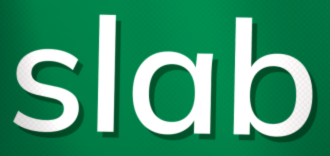
slab